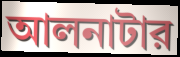
আলনাটার